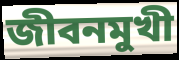
জীবনমুখী